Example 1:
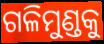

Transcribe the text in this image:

ଗଳିମୁଣ୍ଡକୁ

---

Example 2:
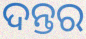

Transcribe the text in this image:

ଦନ୍ତର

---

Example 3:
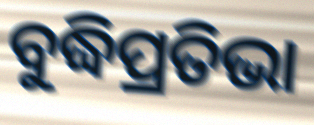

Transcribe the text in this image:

ବୁଦ୍ଧିପ୍ରତିଭା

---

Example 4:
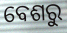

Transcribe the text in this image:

ବେଶରୁ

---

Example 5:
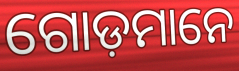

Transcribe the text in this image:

ଗୋଡ଼ମାନେ